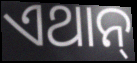
ଏଥାନ୍